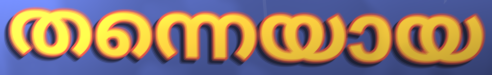
തന്നെയായ